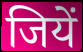
जियें